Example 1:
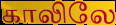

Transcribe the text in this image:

காலிலே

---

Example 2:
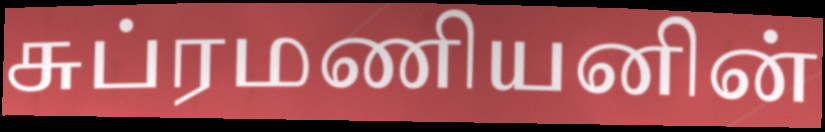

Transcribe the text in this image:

சுப்ரமணியனின்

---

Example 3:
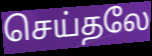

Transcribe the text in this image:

செய்தலே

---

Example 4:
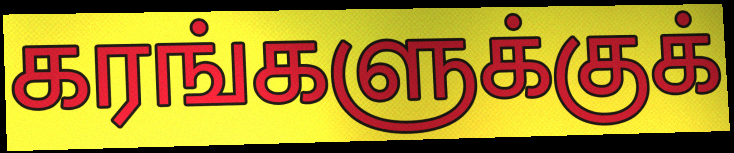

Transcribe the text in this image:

கரங்களுக்குக்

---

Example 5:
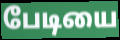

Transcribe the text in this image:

பேடியை